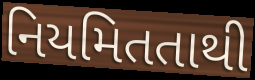
નિયમિતતાથી